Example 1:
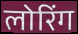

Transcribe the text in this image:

लोरिंग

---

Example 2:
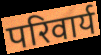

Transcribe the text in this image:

परिवार्य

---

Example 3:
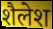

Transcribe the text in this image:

शैलेश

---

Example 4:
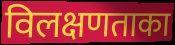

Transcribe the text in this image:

विलक्षणताका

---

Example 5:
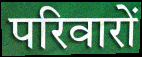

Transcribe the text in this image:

परिवारों